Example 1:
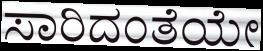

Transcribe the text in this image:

ಸಾರಿದಂತೆಯೇ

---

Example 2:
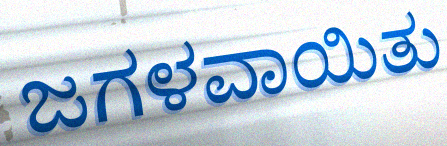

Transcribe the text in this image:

ಜಗಳವಾಯಿತು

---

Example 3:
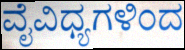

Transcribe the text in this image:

ವೈವಿಧ್ಯಗಳಿಂದ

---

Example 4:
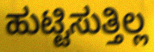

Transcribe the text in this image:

ಹುಟ್ಟಿಸುತ್ತಿಲ್ಲ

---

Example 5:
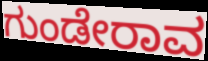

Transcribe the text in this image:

ಗುಂಡೇರಾವ